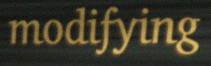
modifying